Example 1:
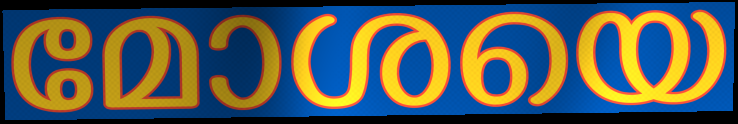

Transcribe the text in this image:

മോശയെ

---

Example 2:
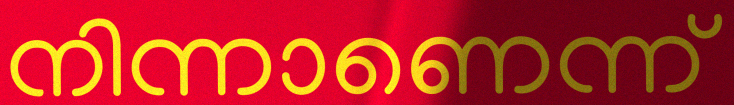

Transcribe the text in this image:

നിന്നാണെന്ന്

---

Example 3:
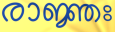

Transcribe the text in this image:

രാജ്ഞഃ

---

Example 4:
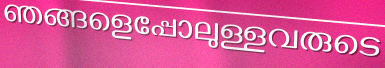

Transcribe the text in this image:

ഞങ്ങളെപ്പോലുള്ളവരുടെ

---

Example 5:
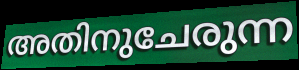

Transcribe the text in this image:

അതിനുചേരുന്ന